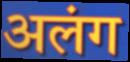
अलंग